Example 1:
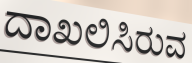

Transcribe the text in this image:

ದಾಖಲಿಸಿರುವ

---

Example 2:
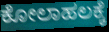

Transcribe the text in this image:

ಕೋಲಾಹಲಕ್ಕೆ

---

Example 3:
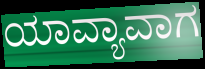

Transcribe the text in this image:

ಯಾವ್ಯಾವಾಗ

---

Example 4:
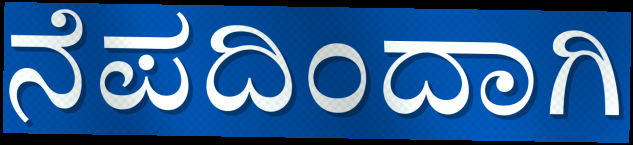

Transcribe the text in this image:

ನೆಪದಿಂದಾಗಿ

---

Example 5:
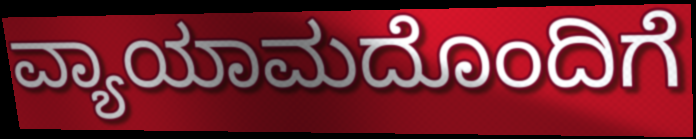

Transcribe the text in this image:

ವ್ಯಾಯಾಮದೊಂದಿಗೆ